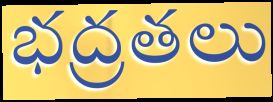
భద్రతలు